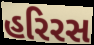
હરિરસ